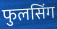
फुलसिंग